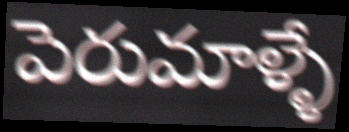
పెరుమాళ్ళే